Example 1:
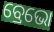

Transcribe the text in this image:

ବ୍ରେଭୋ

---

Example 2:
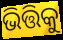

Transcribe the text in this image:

ଭିତ୍ତିକୁ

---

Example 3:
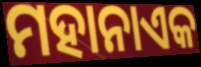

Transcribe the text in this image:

ମହାନାଏକ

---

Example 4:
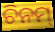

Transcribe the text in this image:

ଚିନମ୍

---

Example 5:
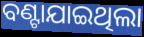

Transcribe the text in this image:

ବଣ୍ଟାଯାଇଥିଲା